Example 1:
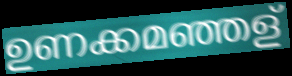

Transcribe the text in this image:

ഉണക്കമഞ്ഞള്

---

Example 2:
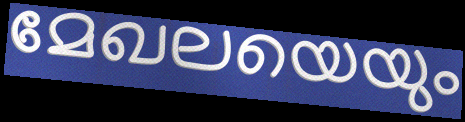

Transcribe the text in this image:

മേഖലയെയും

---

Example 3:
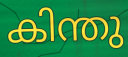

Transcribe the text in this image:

കിന്തു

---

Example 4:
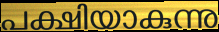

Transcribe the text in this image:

പക്ഷിയാകുന്നു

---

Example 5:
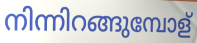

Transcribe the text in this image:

നിന്നിറങ്ങുമ്പോള്